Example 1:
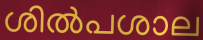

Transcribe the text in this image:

ശിൽപശാല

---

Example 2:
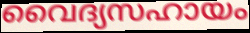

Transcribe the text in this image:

വൈദ്യസഹായം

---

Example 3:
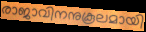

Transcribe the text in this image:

രാജാവിനനുകൂലമായി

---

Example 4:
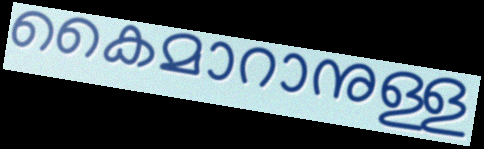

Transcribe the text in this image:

കൈമാറാനുള്ള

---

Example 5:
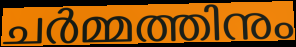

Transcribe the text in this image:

ചർമ്മത്തിനും